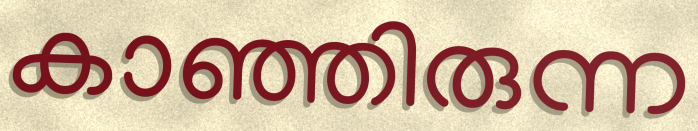
കാഞ്ഞിരുന്ന